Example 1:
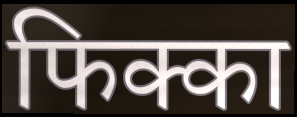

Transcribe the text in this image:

फिक्का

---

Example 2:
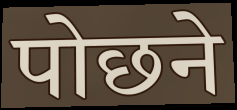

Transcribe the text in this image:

पोछने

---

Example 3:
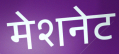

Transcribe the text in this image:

मेशनेट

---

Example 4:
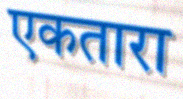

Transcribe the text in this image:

एकतारा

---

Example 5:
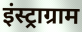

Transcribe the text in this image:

इंस्ट्राग्राम